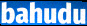
bahudu